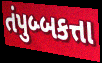
તંપુબ્બકત્તા